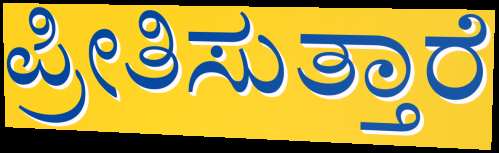
ಪ್ರೀತಿಸುತ್ತಾರೆ